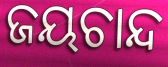
ଜୟଚାନ୍ଦ